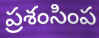
ప్రశంసింప